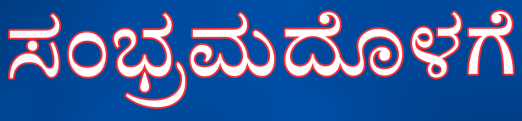
ಸಂಭ್ರಮದೊಳಗೆ